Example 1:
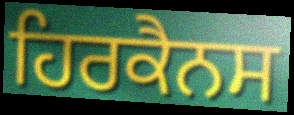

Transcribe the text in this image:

ਹਿਰਕੈਨਸ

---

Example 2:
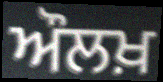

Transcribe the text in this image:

ਔਲਖ਼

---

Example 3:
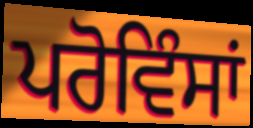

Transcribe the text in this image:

ਪਰੋਵਿੰਸਾਂ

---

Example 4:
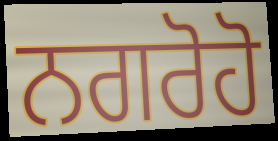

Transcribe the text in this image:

ਨਗਰੋਹੋ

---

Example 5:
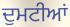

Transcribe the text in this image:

ਦੁਮਟੀਆਂ